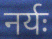
नर्यः